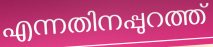
എന്നതിനപ്പുറത്ത്